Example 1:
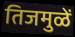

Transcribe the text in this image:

तिजमुळें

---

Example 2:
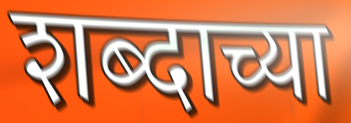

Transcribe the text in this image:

शब्दाच्या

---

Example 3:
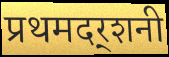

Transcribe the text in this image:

प्रथमदर्शनी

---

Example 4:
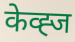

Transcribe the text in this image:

केव्ह्ज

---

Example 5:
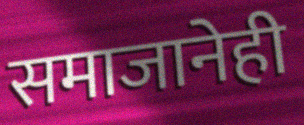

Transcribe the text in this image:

समाजानेही